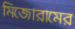
মিজোরামের